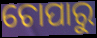
ଚୋପାରୁ